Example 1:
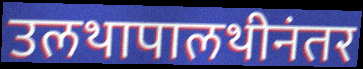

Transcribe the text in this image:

उलथापालथीनंतर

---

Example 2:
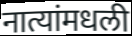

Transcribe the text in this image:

नात्यांमधली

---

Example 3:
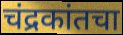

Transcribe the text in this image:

चंद्रकांतचा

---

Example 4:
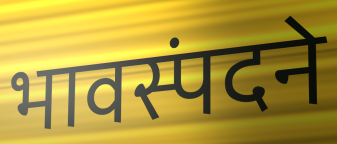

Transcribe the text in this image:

भावस्पंदने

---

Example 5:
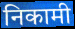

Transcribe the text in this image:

निकामी